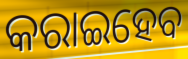
କରାଇହେବ